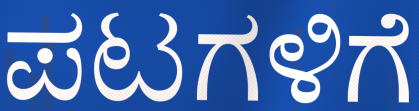
ಪಟಗಳಿಗೆ